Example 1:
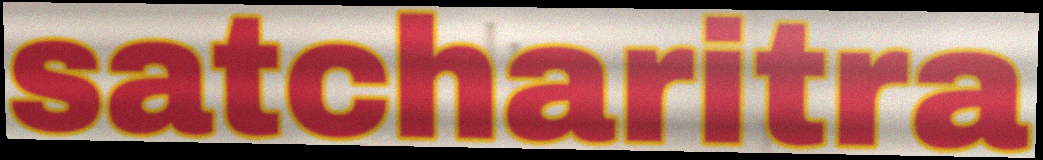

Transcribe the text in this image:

satcharitra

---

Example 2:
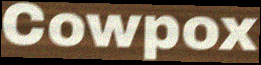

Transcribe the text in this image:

Cowpox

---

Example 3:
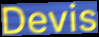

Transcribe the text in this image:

Devis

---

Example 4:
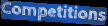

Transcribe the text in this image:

Competitions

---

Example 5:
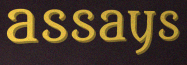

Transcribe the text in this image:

assays